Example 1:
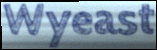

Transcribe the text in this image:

Wyeast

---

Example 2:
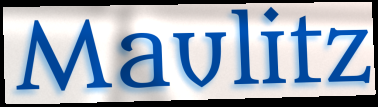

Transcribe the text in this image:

Maulitz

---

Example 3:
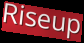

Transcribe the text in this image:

Riseup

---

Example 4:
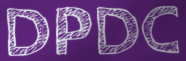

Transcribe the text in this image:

DPDC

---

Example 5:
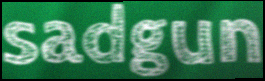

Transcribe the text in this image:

sadgun